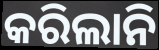
କରିଲାନି